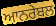
ਆਨਰੇਬਲ